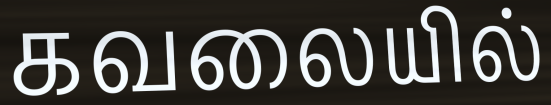
கவலையில்